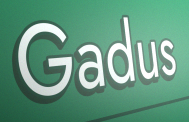
Gadus